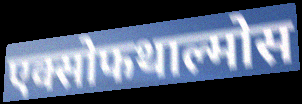
एक्सोफथाल्मोस